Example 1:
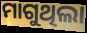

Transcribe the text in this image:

ମାଗୁଥିଲା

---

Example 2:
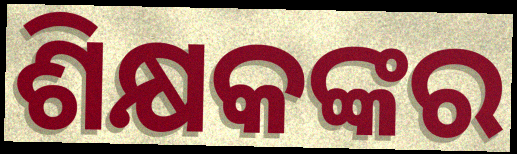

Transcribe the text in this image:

ଶିକ୍ଷକଙ୍କର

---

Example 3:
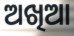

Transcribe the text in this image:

ଅଖିଆ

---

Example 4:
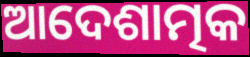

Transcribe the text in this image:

ଆଦେଶାତ୍ମକ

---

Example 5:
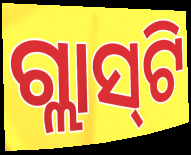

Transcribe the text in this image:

ଗ୍ଲାସ୍‍ଟି